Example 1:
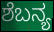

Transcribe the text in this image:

ಶೆಬನ್ಯ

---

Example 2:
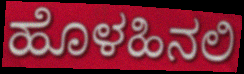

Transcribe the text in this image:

ಹೊಳಹಿನಲಿ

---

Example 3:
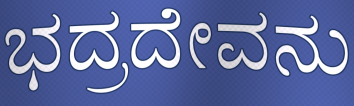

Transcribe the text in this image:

ಭದ್ರದೇವನು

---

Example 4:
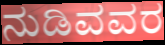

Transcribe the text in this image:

ನುಡಿವವರ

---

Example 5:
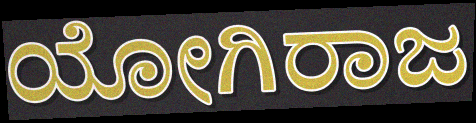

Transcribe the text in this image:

ಯೋಗಿರಾಜ